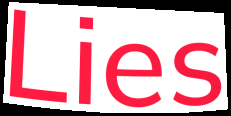
Lies